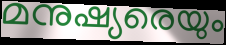
മനുഷ്യരെയും